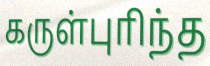
கருள்புரிந்த